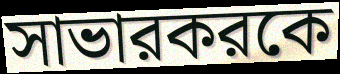
সাভারকরকে